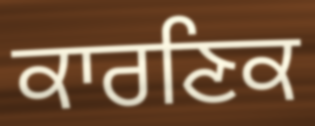
ਕਾਰਣਿਕ